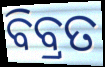
ବିବ୍ରତ